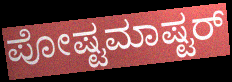
ಪೋಷ್ಟಮಾಷ್ಟರ್